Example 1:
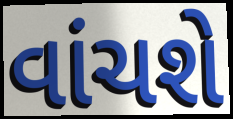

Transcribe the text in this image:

વાંચશે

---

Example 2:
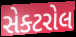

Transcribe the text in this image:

સેક્ટરોલ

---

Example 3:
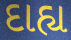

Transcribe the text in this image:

દાહ્ય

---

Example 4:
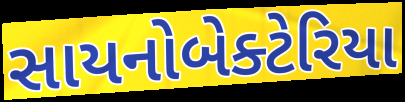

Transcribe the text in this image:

સાયનોબેક્ટેરિયા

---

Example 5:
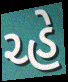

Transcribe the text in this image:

ચ્હે